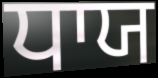
ਧਾਯ